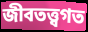
জীবতত্ত্বগত